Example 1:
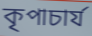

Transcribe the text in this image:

কৃপাচার্য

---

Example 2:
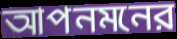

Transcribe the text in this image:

আপনমনের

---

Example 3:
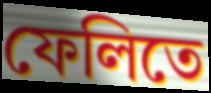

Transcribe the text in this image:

ফেলিতে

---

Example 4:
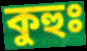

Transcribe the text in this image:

কুহুঃ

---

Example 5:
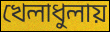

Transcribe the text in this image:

খেলাধুলায়